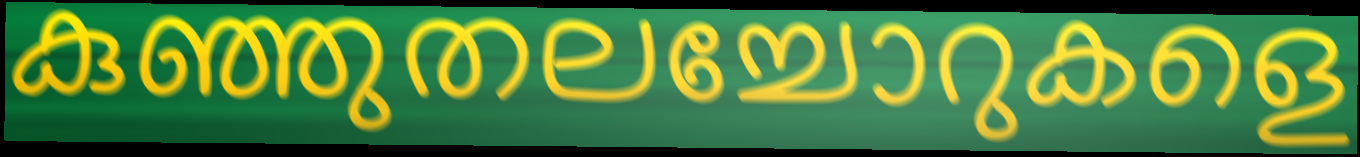
കുഞ്ഞുതലച്ചോറുകളെ